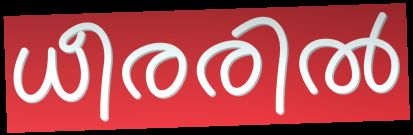
ധീരരിൽ